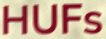
HUFs